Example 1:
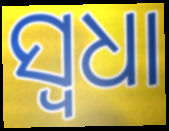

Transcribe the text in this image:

ସ୍ୱଧା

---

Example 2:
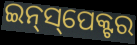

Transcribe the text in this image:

ଇନ୍‍ସ୍‌ପେକ୍ଟର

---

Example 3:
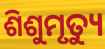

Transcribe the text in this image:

ଶିଶୁମୃତ୍ୟୁ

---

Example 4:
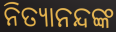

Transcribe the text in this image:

ନିତ୍ୟାନନ୍ଦଙ୍କ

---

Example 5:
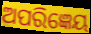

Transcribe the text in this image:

ଅପରିଜ୍ଞେୟ